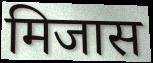
मिजास